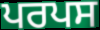
ਪਰਪਸ